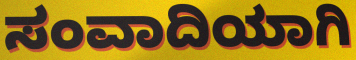
ಸಂವಾದಿಯಾಗಿ